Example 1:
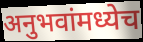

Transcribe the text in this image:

अनुभवांमध्येच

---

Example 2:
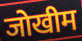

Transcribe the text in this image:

जोखीम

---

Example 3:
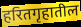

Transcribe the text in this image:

हरितगृहातील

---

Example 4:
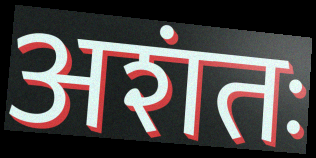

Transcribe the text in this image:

अशंतः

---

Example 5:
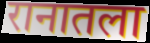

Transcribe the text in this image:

रानातला